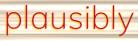
plausibly